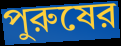
পুরুষের